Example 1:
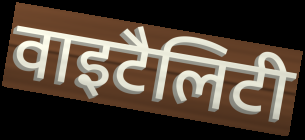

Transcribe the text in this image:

वाइटैलिटी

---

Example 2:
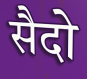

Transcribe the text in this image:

सैदो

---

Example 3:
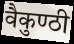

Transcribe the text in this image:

वैकुण्ठी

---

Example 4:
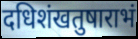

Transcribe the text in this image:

दधिशंखतुषाराभं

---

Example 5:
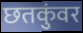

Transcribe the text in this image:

छतकुंवर